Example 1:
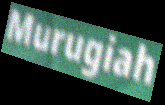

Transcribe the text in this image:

Murugiah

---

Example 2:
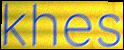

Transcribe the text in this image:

khes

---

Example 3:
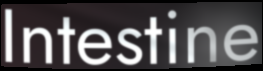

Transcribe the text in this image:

Intestine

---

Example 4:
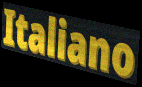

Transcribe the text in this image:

Italiano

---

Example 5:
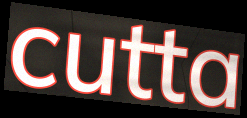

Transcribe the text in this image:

cutta